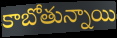
కాబోతున్నాయి